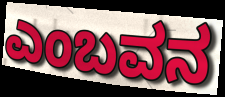
ಎಂಬವನ